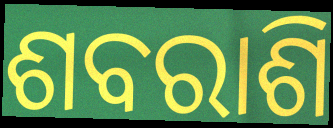
ଶବରାଶି